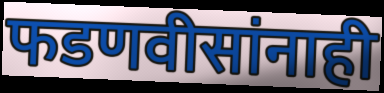
फडणवीसांनाही